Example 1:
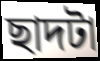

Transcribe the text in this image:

ছাদটা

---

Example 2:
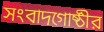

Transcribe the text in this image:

সংবাদগোষ্ঠীর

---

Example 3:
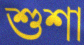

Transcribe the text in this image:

শুশা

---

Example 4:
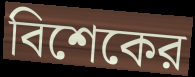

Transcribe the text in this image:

বিশেকের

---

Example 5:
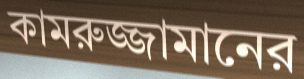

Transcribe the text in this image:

কামরুজ্জামানের